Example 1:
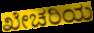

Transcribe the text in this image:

ಖೇಚರಿಯ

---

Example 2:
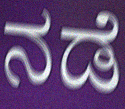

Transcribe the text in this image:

ನಡೆ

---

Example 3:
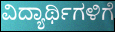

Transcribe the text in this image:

ವಿದ್ಯಾರ್ಥಿಗಳಿಗೆ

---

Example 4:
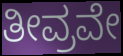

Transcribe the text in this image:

ತೀವ್ರವೇ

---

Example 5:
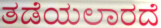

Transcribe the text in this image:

ತಡೆಯಲಾರದೆ